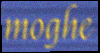
moghe